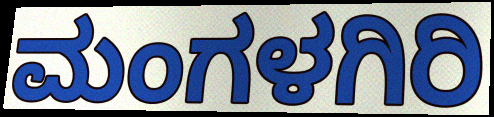
ಮಂಗಳಗಿರಿ